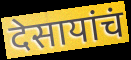
देसायांचं